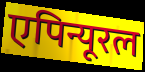
एपिन्यूरल